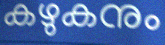
കഴുകനും